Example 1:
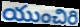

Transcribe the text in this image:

యుంచిరి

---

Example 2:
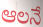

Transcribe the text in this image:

ఆలనే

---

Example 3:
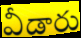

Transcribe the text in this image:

వీడారు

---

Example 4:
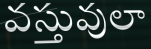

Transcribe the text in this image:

వస్తువులా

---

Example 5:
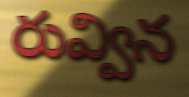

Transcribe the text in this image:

రువ్విన